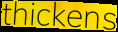
thickens